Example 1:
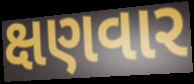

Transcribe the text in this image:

ક્ષણવાર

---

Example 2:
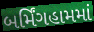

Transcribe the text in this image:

બર્મિંગહામમાં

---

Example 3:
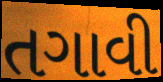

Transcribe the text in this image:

તગાવી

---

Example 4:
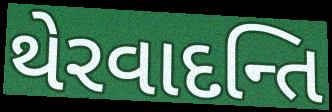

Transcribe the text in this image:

થેરવાદન્તિ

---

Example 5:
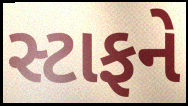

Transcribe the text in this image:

સ્ટાફને